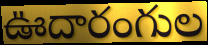
ఊదారంగుల